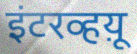
इंटरव्हय़ू